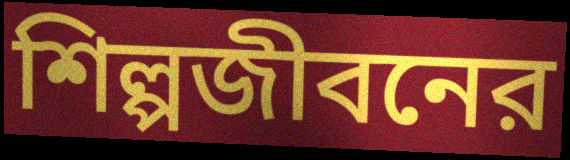
শিল্পজীবনের